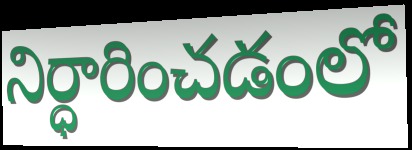
నిర్ధారించడంలో